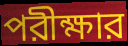
পরীক্ষার